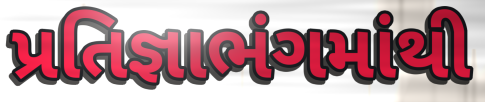
પ્રતિજ્ઞાભંગમાંથી